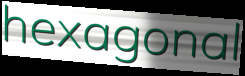
hexagonal